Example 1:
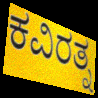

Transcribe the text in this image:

ಕವಿರತ್ನ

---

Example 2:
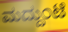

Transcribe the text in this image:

ಮದ್ದುಂಟೆ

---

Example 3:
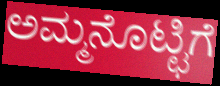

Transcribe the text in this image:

ಅಮ್ಮನೊಟ್ಟಿಗೆ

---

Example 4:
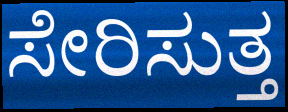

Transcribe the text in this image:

ಸೇರಿಸುತ್ತ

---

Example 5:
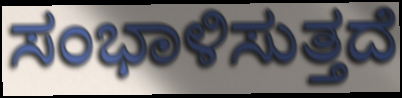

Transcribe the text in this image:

ಸಂಭಾಳಿಸುತ್ತದೆ